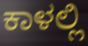
ಕಾಳಲ್ಲಿ